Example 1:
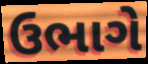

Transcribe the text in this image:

ઉભાગે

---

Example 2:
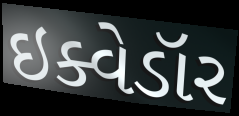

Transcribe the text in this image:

ઇક્વેડૉર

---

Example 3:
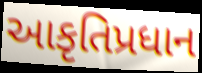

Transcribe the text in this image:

આકૃતિપ્રધાન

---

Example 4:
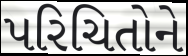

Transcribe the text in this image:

પરિચિતોને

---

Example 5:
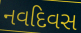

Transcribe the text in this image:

નવદિવસ